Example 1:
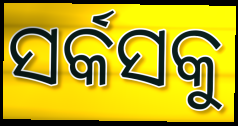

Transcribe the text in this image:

ସର୍କସକୁ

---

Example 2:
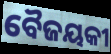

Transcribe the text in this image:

ବୈଜୟକୀ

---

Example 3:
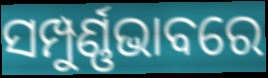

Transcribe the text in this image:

ସମ୍ପୁର୍ଣ୍ଣଭାବରେ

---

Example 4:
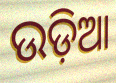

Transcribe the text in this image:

ଉଡ଼ିଆ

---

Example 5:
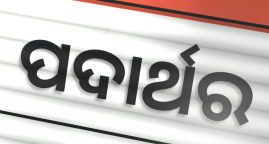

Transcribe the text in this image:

ପଦାର୍ଥର